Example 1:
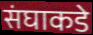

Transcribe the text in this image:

संघाकडे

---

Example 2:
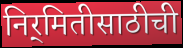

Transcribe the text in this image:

निर्मितीसाठीची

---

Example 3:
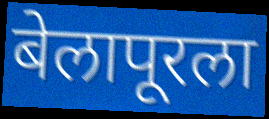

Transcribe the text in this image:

बेलापूरला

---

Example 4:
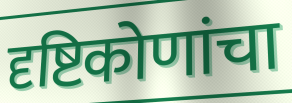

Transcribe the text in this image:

दृष्टिकोणांचा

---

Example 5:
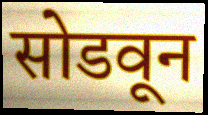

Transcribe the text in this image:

सोडवून